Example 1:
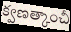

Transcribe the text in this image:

క్వణత్కాంచీ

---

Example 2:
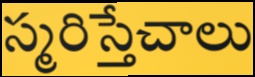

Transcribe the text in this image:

స్మరిస్తేచాలు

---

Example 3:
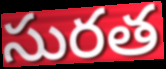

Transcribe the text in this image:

సురత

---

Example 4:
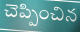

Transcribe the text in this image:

చెప్పించిన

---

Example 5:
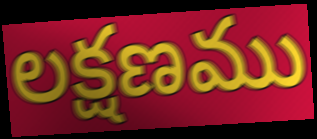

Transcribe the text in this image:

లక్షణము